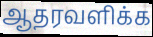
ஆதரவளிக்க